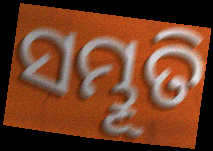
ସମ୍ଭୂତି